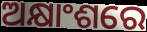
ଅକ୍ଷାଂଶରେ